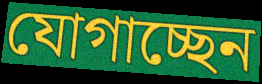
যোগাচ্ছেন